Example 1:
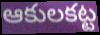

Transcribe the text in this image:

ఆకులకట్ట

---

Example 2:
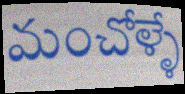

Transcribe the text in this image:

మంచోళ్ళే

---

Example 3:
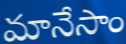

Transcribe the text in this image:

మానేసాం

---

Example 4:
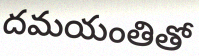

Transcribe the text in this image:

దమయంతితో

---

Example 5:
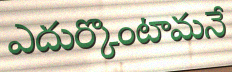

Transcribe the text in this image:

ఎదుర్కొంటామనే